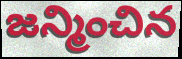
జన్మించిన